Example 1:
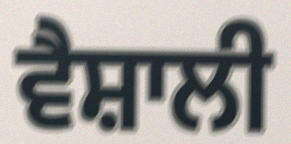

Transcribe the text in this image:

ਵੈਸ਼ਾਲੀ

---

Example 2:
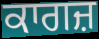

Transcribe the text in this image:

ਕਾਗਜ਼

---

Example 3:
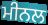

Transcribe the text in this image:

ਮੀਨਲ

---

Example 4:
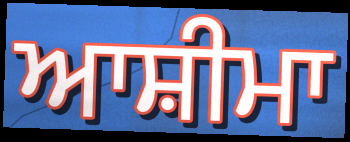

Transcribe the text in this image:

ਆਸ਼ੀਮਾ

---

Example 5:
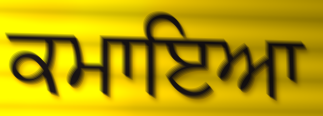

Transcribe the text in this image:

ਕਮਾਇਆ